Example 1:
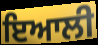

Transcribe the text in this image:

ਇਆਲੀ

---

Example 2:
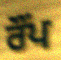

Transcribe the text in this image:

ਰੌਂਪ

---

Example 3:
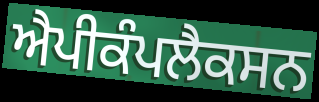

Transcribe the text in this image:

ਐਪੀਕੰਪਲੈਕਸਨ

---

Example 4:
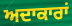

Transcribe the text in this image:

ਅਦਾਕਾਰਾਂ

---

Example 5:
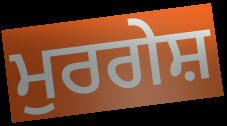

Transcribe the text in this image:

ਮੁਰਗੇਸ਼